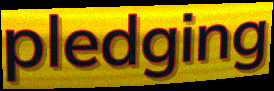
pledging